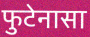
फुटेनासा